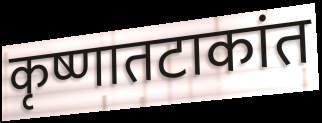
कृष्णातटाकांत